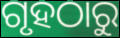
ଗୃହଠାରୁ